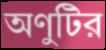
অণুটির